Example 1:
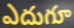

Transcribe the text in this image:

ఎదుగూ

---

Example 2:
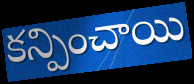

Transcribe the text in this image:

కన్పించాయి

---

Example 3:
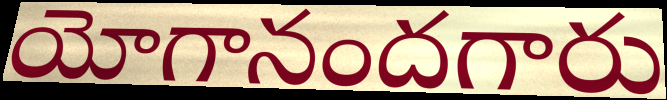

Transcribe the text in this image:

యోగానందగారు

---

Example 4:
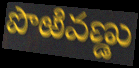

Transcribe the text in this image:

పొఱివణ్డు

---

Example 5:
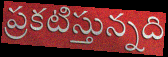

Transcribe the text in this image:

ప్రకటిస్తున్నది